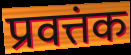
प्रवत्तंक